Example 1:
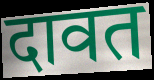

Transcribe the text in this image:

दावत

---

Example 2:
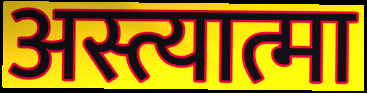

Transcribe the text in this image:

अस्त्यात्मा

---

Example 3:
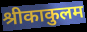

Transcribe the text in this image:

श्रीकाकुलम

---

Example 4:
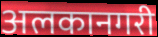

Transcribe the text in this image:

अलकानगरी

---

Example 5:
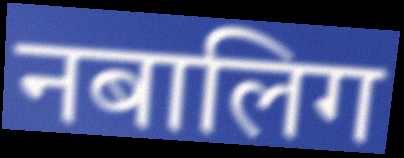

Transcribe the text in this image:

नबालिग